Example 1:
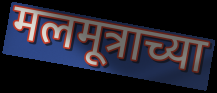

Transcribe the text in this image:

मलमूत्राच्या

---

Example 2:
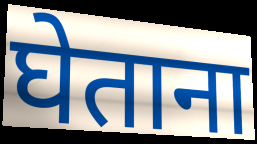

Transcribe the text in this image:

घेताना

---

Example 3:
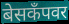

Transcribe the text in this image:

बेसकॅंपवर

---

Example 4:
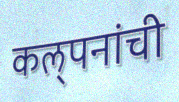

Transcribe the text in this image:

कल्पनांची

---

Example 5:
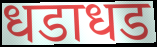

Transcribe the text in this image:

धडाधड